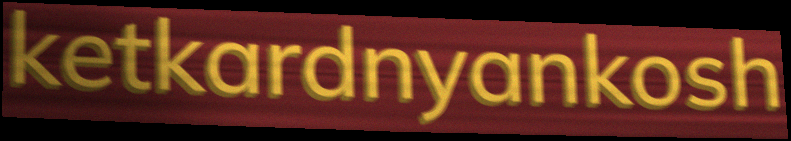
ketkardnyankosh